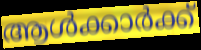
ആൾക്കാർക്ക്